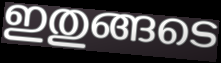
ഇതുങ്ങടെ